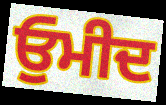
ਓੁਮੀਦ